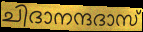
ചിദാനന്ദദാസ്